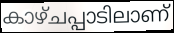
കാഴ്ചപ്പാടിലാണ്